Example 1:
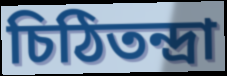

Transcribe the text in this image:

চিঠিতন্দ্রা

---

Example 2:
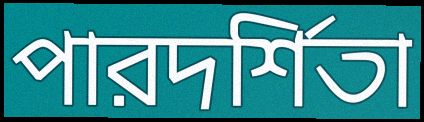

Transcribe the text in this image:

পারদর্শিতা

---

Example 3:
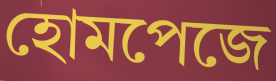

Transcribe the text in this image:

হোমপেজে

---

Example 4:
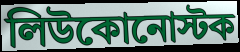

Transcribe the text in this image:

লিউকোনোস্টক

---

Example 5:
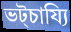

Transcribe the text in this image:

ভট্চায্যি